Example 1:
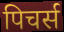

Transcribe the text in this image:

पिचर्स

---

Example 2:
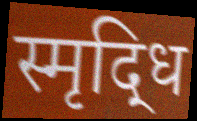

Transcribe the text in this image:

स्मृद्धि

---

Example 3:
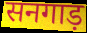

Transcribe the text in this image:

सनगाड़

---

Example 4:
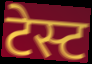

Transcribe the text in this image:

टेस्‍ट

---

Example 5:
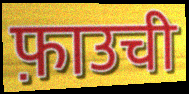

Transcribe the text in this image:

फ़ाउची